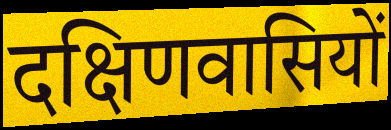
दक्षिणवासियों